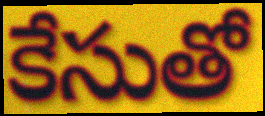
కేసుతో